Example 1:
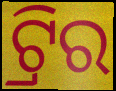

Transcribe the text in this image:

ଟ୍ରିର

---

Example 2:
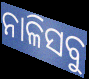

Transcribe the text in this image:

ନାଳିସବୁ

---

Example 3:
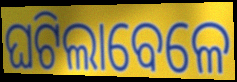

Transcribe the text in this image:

ଘଟିଲାବେଳେ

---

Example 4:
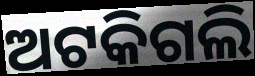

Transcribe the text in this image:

ଅଟକିଗଲି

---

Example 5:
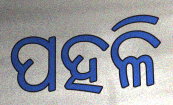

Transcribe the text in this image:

ପହଳି